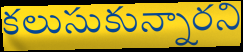
కలుసుకున్నారని